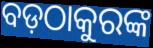
ବଡ଼ଠାକୁରଙ୍କ